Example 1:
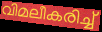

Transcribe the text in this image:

വിമലീകരിച്ച്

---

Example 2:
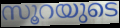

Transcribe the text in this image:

സൂറയുടെ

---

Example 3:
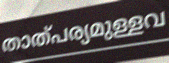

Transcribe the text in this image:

താത്പര്യമുള്ളവ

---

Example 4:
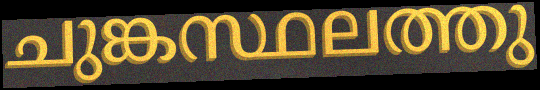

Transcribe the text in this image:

ചുങ്കസ്ഥലത്തു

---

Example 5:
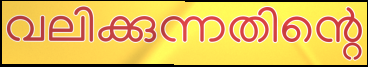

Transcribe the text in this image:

വലിക്കുന്നതിന്റെ